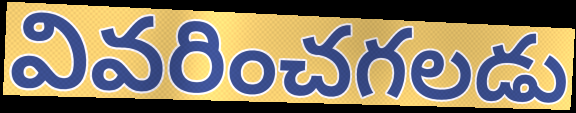
వివరించగలడు